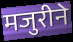
मजुरीने